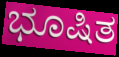
ಭೂಷಿತ